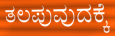
ತಲಪುವುದಕ್ಕೆ